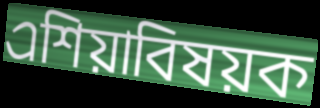
এশিয়াবিষয়ক